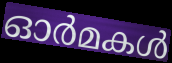
ഓർമകൾ